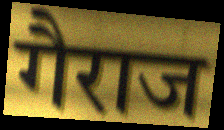
गैराज